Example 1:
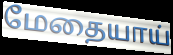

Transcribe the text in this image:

மேதையாய்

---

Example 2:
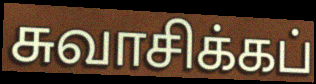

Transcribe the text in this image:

சுவாசிக்கப்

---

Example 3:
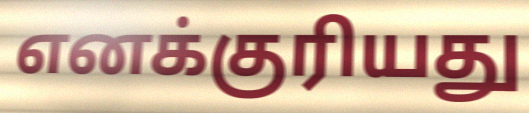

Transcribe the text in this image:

எனக்குரியது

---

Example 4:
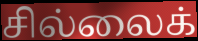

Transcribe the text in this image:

சில்லைக்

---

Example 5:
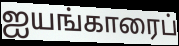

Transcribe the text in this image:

ஐயங்காரைப்